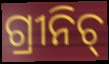
ଗ୍ରୀନିଚ୍